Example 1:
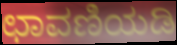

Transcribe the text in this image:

ಛಾವಣಿಯಡಿ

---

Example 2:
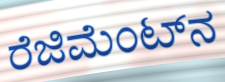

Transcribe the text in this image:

ರೆಜಿಮೆಂಟ್‌ನ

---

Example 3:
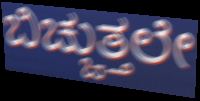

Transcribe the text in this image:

ಬಿಚ್ಚುತ್ತಲೇ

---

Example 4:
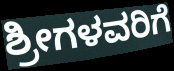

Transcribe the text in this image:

ಶ್ರೀಗಳವರಿಗೆ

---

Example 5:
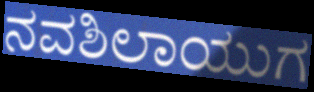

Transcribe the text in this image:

ನವಶಿಲಾಯುಗ